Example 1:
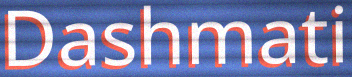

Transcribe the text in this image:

Dashmati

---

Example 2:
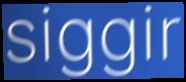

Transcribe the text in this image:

siggir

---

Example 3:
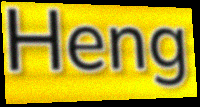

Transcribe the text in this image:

Heng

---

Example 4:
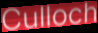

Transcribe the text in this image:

Culloch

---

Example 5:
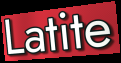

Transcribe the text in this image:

Latite